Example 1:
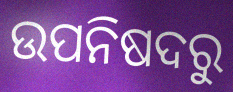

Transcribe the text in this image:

ଉପନିଷଦରୁ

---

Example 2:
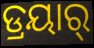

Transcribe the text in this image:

ଡ୍ରୟାର୍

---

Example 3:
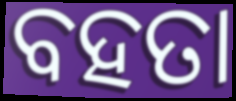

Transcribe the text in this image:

ବହତା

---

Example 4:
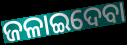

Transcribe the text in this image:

ଜଳାଇଦେବା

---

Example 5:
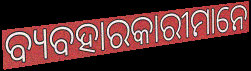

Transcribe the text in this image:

ବ୍ୟବହାରକାରୀମାନେ